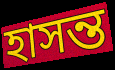
হাসন্ত